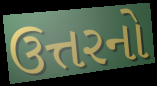
ઉત્તરનો